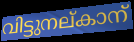
വിട്ടുനല്കാന്